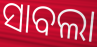
ସାବଲା